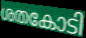
ശതകോടി